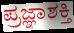
ಪ್ರಜ್ಞಾಶಕ್ತಿ